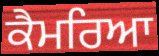
ਕੈਮਰਿਆ